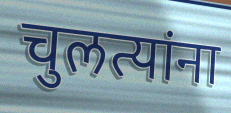
चुलत्यांना